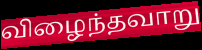
விழைந்தவாறு